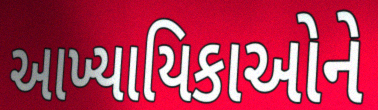
આખ્યાયિકાઓને